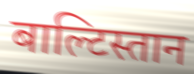
बाल्टिस्तान